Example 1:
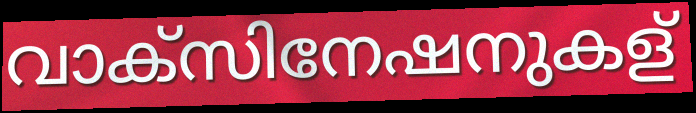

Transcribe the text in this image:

വാക്സിനേഷനുകള്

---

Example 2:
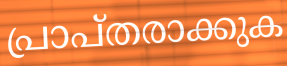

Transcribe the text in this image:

പ്രാപ്തരാക്കുക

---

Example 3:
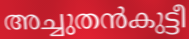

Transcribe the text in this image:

അച്ചുതൻകുട്ടീ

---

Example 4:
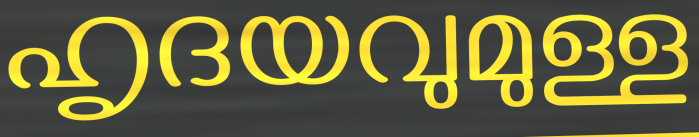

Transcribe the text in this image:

ഹൃദയവുമുള്ള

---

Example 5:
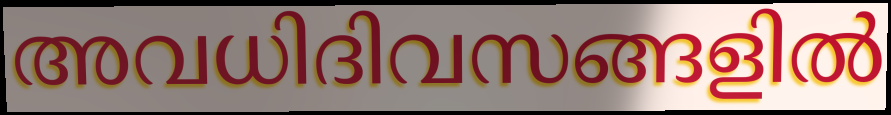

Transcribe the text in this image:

അവധിദിവസങ്ങളിൽ